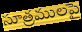
సూత్రములపై